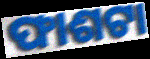
ଫାଶଟା